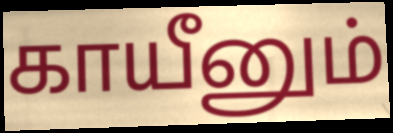
காயீனும்